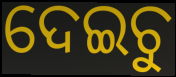
ଦେଇଚୁ